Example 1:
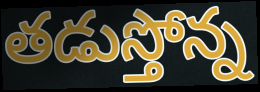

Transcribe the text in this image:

తడుస్తోన్న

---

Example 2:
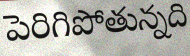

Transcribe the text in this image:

పెరిగిపోతున్నది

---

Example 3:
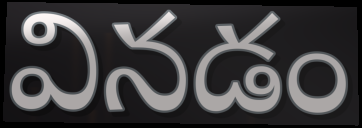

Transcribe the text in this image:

వినడం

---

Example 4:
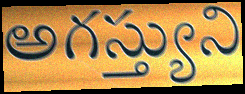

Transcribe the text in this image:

అగస్త్యుని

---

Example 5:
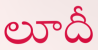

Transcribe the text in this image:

లూదీ